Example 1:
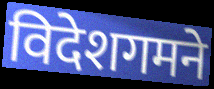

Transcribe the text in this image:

विदेशगमने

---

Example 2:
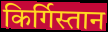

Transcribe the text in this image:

किर्गिस्‍तान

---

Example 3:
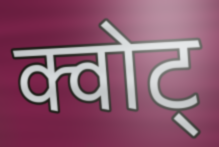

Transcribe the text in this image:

क्वोट्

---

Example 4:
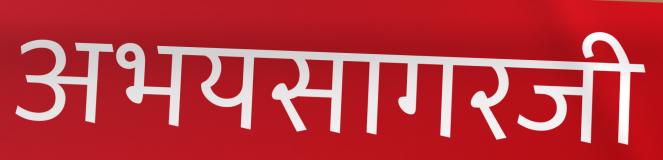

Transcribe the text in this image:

अभयसागरजी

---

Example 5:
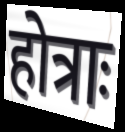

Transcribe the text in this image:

होत्राः